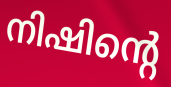
നിഷിന്റെ